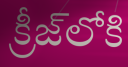
క్రీజ్‌లోకి